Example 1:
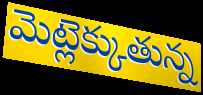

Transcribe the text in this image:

మెట్లెక్కుతున్న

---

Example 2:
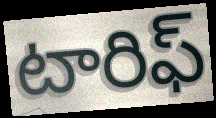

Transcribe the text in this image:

టారిఫ్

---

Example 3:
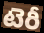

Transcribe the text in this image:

టెరీ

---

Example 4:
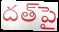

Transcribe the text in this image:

దత్‌పై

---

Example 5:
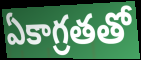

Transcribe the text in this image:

ఏకాగ్రతతో